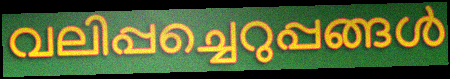
വലിപ്പച്ചെറുപ്പങ്ങൾ